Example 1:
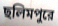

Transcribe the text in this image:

ছলিমপুরে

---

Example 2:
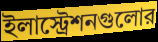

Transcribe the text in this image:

ইলাস্ট্রেশনগুলোর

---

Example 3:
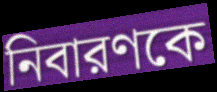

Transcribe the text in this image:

নিবারণকে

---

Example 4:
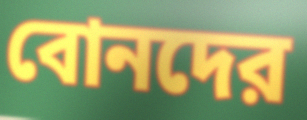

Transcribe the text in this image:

বোনদের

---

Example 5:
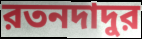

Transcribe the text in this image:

রতনদাদুর